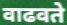
वाढवते